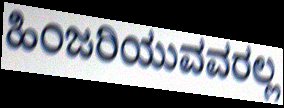
ಹಿಂಜರಿಯುವವರಲ್ಲ